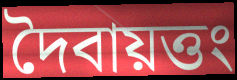
দৈবায়ত্তং